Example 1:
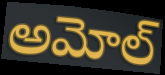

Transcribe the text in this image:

అమోల్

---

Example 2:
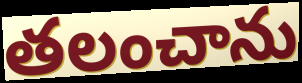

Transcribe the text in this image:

తలంచాను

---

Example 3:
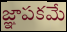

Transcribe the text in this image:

జ్ఞాపకమే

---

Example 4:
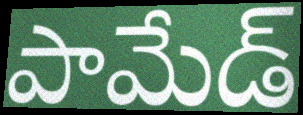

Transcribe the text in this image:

పామేడ్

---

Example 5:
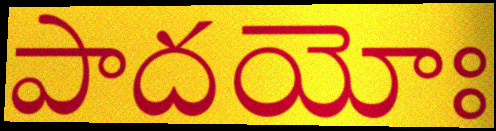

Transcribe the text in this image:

పాదయోః